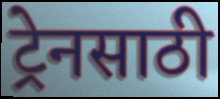
ट्रेनसाठी